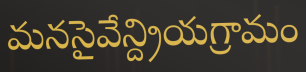
మనసైవేన్ద్రియగ్రామం